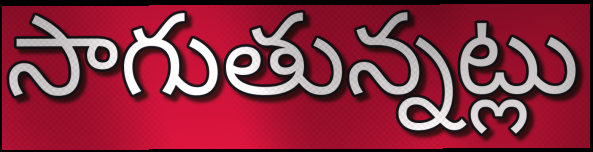
సాగుతున్నట్లు